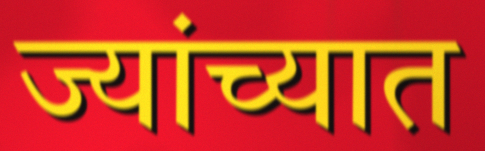
ज्यांच्यात